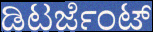
ಡಿಟರ್ಜೆಂಟ್